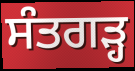
ਸੰਤਗੜ੍ਹ